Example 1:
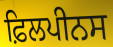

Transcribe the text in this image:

ਫ਼ਿਲਪੀਨਸ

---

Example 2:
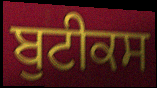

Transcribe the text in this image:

ਬੁਟੀਕਸ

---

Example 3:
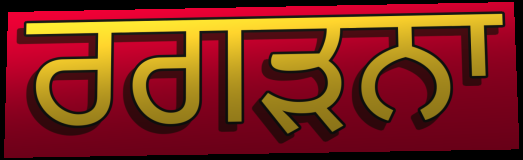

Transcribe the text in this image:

ਰਗੜਨਾ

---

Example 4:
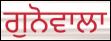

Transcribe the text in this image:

ਗੁਨੋਵਾਲਾ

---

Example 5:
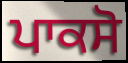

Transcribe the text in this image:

ਪਾਕਸੋ